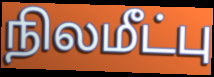
நிலமீட்பு